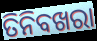
ତିନିବଖରା